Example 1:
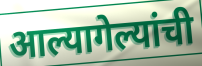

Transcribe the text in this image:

आल्यागेल्यांची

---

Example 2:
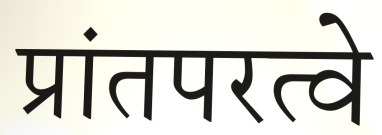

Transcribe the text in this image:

प्रांतपरत्वे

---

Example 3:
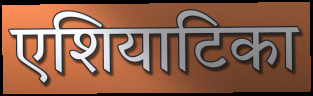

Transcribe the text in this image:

एशियाटिका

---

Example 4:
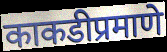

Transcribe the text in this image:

काकडीप्रमाणे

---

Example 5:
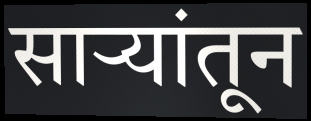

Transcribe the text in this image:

साऱ्यांतून